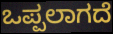
ಒಪ್ಪಲಾಗದೆ